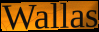
Wallas